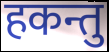
हकन्तु